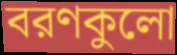
বরণকুলো